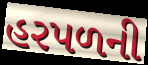
હરપળની